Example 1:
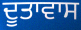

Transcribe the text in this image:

ਦੂਤਾਵਾਸ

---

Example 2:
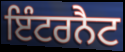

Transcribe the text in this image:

ਇੰਟਰਨੈਟ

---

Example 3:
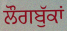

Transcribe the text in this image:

ਲੌਗਬੁੱਕਾਂ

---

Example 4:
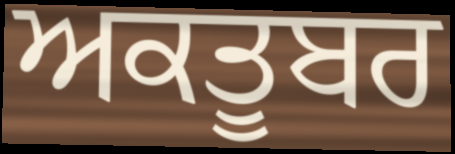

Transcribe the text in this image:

ਅਕਤੂਬਰ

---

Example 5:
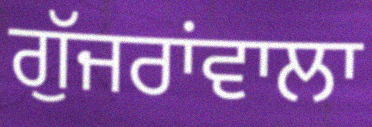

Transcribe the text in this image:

ਗੁੱਜਰਾਂਵਾਲਾ